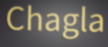
Chagla